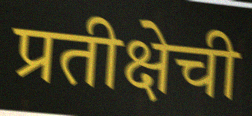
प्रतीक्षेची